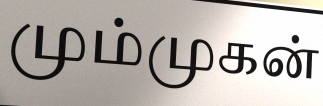
மும்முகன்